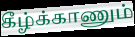
கீழ்க்காணும்